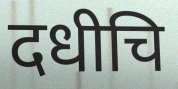
दधीचि